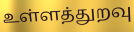
உள்ளத்துறவு